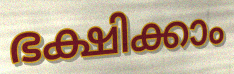
ഭക്ഷിക്കാം